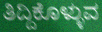
ತಿದ್ದಿಕೊಳ್ಳುವ